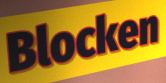
Blocken